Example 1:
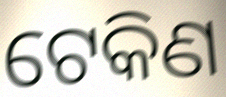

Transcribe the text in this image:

ଟେକିଣ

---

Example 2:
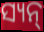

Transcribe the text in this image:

ସ୍ୟନ୍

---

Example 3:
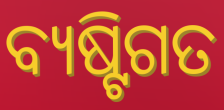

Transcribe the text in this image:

ବ୍ୟଷ୍ଟିଗତ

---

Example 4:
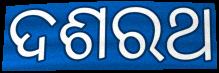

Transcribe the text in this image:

ଦଶରଥ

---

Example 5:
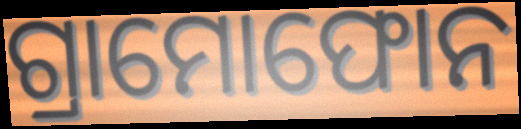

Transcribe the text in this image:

ଗ୍ରାମୋଫୋନ